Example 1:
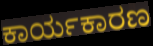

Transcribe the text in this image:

ಕಾರ್ಯಕಾರಣ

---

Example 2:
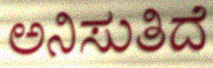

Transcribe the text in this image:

ಅನಿಸುತಿದೆ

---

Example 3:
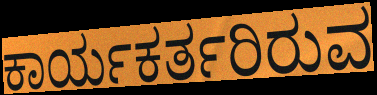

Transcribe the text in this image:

ಕಾರ್ಯಕರ್ತರಿರುವ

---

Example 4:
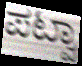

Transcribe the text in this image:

ಪಟ್ವಾ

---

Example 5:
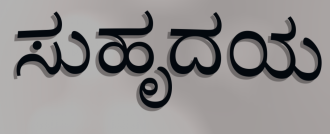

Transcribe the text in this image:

ಸುಹೃದಯ